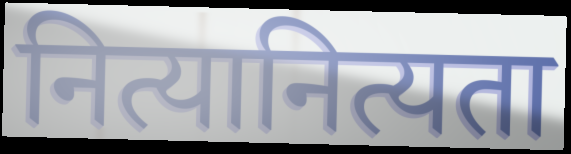
नित्यानित्यता